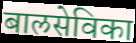
बालसेविका